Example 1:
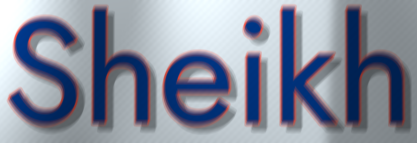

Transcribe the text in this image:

Sheikh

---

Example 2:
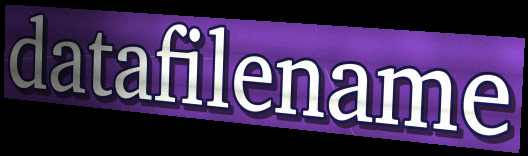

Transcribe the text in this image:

datafilename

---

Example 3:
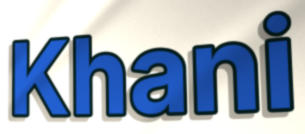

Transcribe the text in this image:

Khani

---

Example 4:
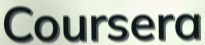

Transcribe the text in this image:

Coursera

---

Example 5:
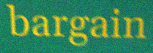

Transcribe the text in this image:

bargain